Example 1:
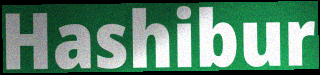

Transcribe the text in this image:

Hashibur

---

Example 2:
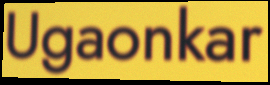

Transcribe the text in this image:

Ugaonkar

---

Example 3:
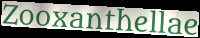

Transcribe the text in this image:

Zooxanthellae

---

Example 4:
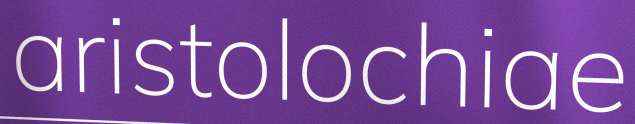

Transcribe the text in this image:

aristolochiae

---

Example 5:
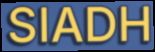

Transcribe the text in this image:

SIADH